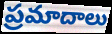
ప్రమాదాలు